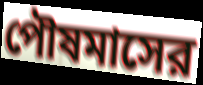
পৌষমাসের